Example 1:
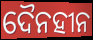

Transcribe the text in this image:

ଦୈନହୀନ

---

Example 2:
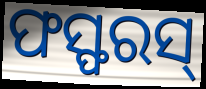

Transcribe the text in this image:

ଫସ୍ଫରସ୍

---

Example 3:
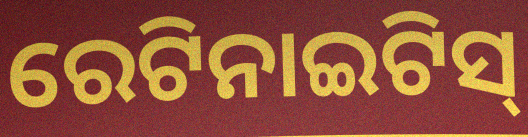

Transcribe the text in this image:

ରେଟିନାଇଟିସ୍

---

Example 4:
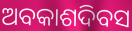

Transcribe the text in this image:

ଅବକାଶଦିବସ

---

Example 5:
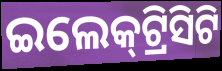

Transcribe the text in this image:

ଇଲେକ୍‌ଟ୍ରିସିଟି